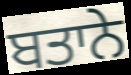
ਬਤਾਨੇ